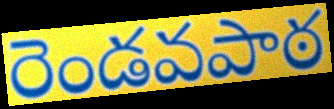
రెండవపాఠ